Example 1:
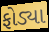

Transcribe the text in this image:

ફોડ્યા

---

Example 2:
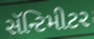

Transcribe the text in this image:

સૅન્ટિમીટર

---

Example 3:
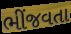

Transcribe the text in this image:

ભીંજવતા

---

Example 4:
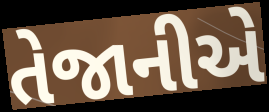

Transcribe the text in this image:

તેજાનીએ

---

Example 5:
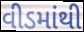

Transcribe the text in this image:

વીડમાંથી